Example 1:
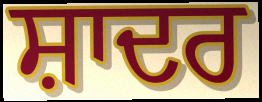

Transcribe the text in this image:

ਸ਼ਾਦਰ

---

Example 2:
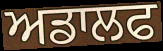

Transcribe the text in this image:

ਅਡਾਲਫ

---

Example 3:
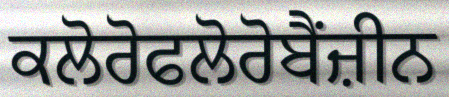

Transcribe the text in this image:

ਕਲੋਰੋਫਲੋਰੋਬੈਂਜ਼ੀਨ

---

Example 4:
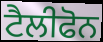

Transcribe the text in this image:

ਟੈਲੀਫੋਨ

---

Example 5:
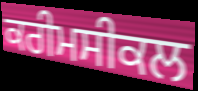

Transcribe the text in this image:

ਕਰੀਮਸੀਕਲ